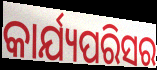
କାର୍ଯ୍ୟପରିସର